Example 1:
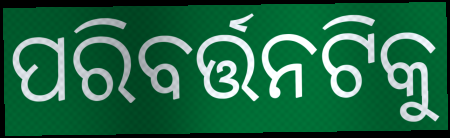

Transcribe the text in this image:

ପରିବର୍ତ୍ତନଟିକୁ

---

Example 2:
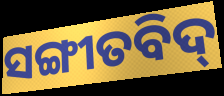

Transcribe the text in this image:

ସଙ୍ଗୀତବିଦ୍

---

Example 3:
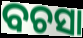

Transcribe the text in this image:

ବଚସା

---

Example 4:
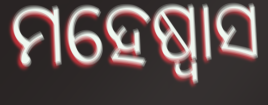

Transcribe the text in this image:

ମହେଷ୍ୱାସ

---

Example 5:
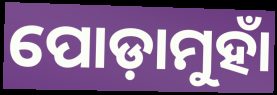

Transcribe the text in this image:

ପୋଡ଼ାମୁହାଁ